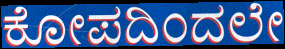
ಕೋಪದಿಂದಲೇ